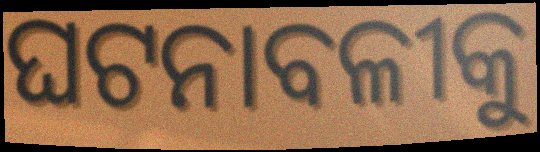
ଘଟନାବଳୀକୁ